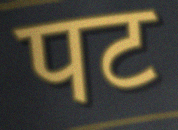
पट